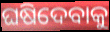
ଘଷିଦେବାକୁ